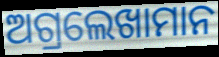
ଅଗ୍ରଲେଖାମାନ